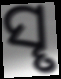
ସୄ